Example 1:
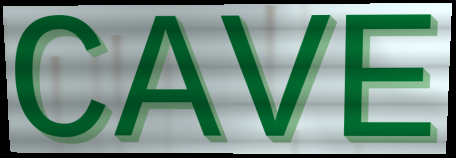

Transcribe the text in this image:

CAVE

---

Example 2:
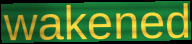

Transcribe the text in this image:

wakened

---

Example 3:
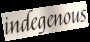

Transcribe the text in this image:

indegenous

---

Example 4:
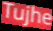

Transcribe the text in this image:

Tujhe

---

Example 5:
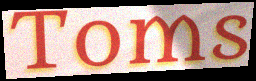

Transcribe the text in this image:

Toms